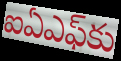
ఐఏఎఫ్‌కు